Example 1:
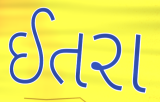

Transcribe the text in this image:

ઈતરા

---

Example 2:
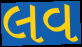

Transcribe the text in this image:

લવ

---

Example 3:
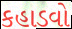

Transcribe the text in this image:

કહાડવો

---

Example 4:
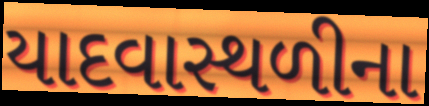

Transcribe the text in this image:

યાદવાસ્થળીના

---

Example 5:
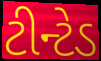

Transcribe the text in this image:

ટીન્ટેડ